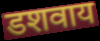
डशवाय